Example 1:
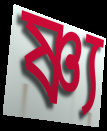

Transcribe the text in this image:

ষ্ণ্য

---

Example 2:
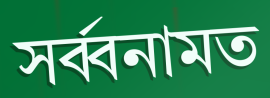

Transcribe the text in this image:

সৰ্ব্বনামত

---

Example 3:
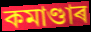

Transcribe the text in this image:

কমাণ্ডাৰ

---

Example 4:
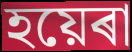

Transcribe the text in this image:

হয়েৰা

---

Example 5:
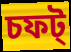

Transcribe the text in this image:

চফট্